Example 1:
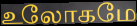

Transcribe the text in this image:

உலோகமே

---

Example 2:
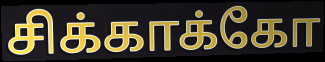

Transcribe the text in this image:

சிக்காக்கோ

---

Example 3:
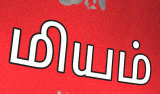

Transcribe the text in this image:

மியம்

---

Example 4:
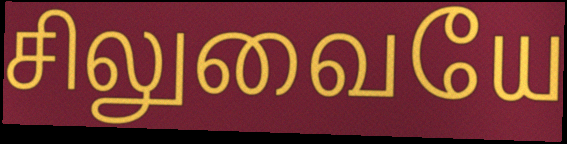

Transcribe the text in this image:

சிலுவையே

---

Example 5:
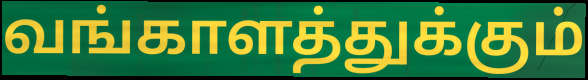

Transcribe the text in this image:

வங்காளத்துக்கும்